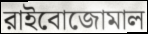
রাইবোজোমাল